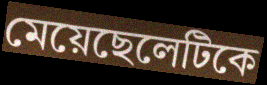
মেয়েছেলেটিকে